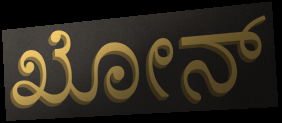
ಖೋನ್